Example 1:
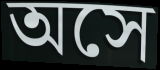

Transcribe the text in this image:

অসে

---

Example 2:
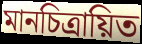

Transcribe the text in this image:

মানচিত্রায়িত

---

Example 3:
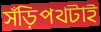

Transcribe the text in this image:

সঁড়িপথটাই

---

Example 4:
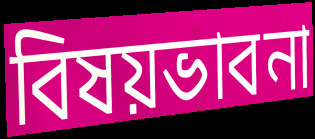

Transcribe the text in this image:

বিষয়ভাবনা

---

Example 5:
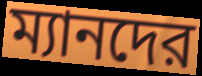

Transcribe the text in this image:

ম্যানদের